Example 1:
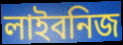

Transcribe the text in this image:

লাইবনিজ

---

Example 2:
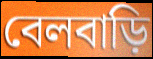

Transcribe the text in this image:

বেলবাড়ি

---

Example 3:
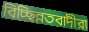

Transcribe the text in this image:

বিচ্ছিন্নতবাদীরা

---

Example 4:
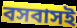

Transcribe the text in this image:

বসবাসই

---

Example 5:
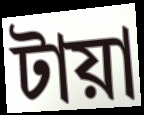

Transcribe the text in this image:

টায়া